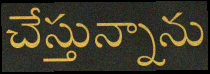
చేస్తున్నాను